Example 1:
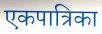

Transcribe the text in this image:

एकपात्रिका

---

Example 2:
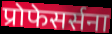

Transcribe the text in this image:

प्रोफेसर्सना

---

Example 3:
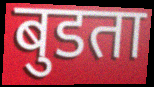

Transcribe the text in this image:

बुडता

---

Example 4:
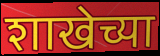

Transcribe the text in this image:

शाखेच्या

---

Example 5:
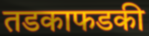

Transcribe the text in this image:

तडकाफडकी